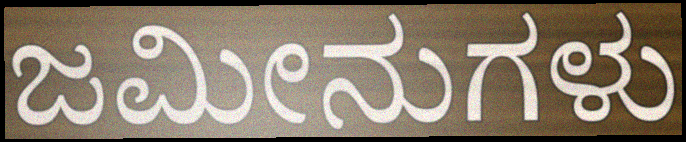
ಜಮೀನುಗಳು